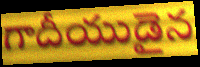
గాదీయుడైన